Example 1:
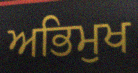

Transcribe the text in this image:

ਅਭਿਮੁਖ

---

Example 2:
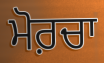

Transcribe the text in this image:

ਮੋਰ਼ਚਾ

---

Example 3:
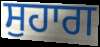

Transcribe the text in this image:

ਸੁਹਾਗ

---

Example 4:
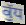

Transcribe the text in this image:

ਕੁੱਧ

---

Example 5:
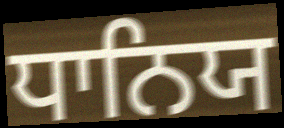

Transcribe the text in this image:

ਧਾਨਿਯ